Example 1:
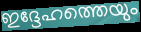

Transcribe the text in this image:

ഇദ്ദേഹത്തെയും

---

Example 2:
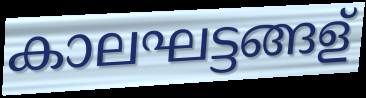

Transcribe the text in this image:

കാലഘട്ടങ്ങള്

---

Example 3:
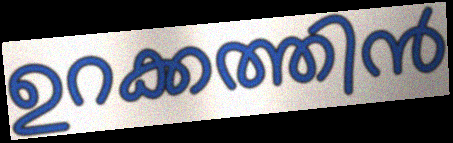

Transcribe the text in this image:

ഉറക്കത്തിൻ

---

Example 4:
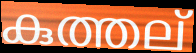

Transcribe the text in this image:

കുത്തല്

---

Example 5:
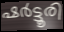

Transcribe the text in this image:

ഷർട്ടൂരി